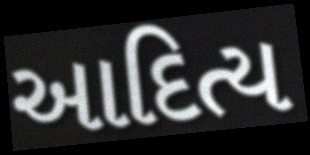
આદિત્ય